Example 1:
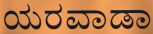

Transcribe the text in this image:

ಯರವಾಡಾ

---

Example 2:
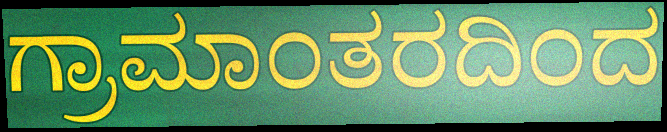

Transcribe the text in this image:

ಗ್ರಾಮಾಂತರದಿಂದ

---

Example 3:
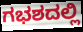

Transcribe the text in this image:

ಗಭಶದಲ್ಲಿ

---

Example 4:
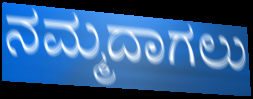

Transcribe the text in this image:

ನಮ್ಮದಾಗಲು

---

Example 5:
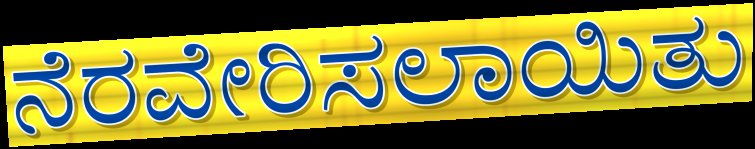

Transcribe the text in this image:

ನೆರವೇರಿಸಲಾಯಿತು